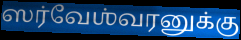
ஸர்வேஶ்வரனுக்கு